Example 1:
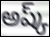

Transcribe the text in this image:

అష్క్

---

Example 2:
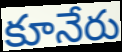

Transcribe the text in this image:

కూనేరు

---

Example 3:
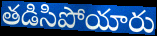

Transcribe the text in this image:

తడిసిపోయారు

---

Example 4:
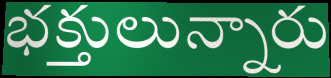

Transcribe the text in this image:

భక్తులున్నారు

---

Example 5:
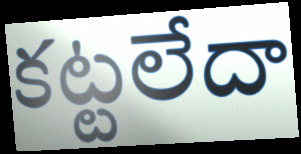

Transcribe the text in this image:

కట్టలేదా